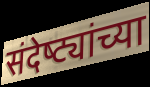
संदेष्ट्यांच्या